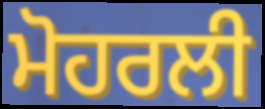
ਮੋਹਰਲੀ